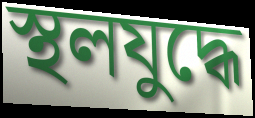
স্থলযুদ্ধে